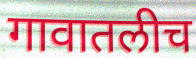
गावातलीच